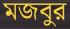
মজবুর